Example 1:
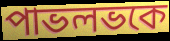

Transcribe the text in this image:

পাভলভকে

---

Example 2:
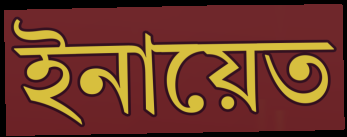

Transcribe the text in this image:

ইনায়েত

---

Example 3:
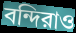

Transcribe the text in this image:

বন্দিরাও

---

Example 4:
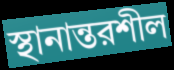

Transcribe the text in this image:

স্থানান্তরশীল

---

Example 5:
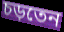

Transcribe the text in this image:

চড়তেন